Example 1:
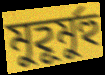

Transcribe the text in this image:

মুহূর্মুহু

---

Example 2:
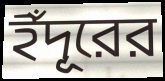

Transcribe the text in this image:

ইঁদূরের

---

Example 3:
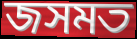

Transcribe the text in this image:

জসমত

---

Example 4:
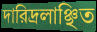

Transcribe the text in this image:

দারিদ্রলাঞ্ছিত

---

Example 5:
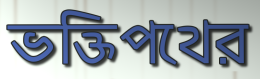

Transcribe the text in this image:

ভক্তিপথের